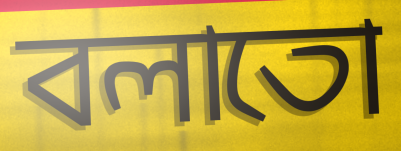
বলাতো